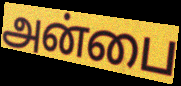
அன்பை